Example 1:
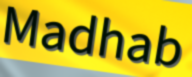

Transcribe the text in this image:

Madhab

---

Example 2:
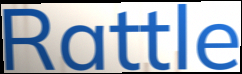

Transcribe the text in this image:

Rattle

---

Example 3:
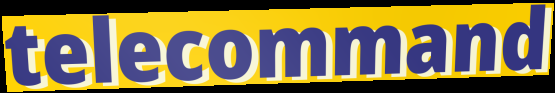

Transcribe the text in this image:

telecommand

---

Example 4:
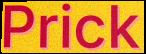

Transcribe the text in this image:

Prick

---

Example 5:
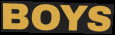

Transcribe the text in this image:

BOYS